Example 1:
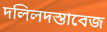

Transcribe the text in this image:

দলিলদস্তাবেজ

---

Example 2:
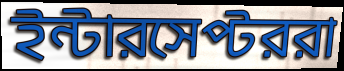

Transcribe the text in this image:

ইন্টারসেপ্টররা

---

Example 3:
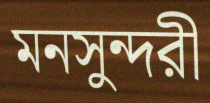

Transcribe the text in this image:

মনসুন্দরী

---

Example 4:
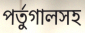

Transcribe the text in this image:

পর্তুগালসহ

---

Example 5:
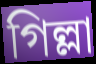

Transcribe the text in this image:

গিল্লা